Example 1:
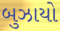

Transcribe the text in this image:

બુઝાયો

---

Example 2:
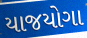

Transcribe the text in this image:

યાજયોગા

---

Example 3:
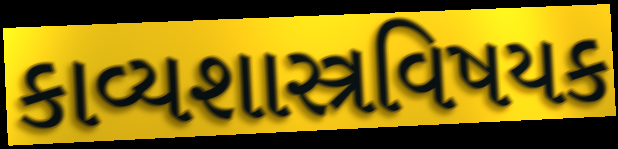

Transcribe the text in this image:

કાવ્યશાસ્ત્રવિષયક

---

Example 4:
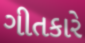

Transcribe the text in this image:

ગીતકારે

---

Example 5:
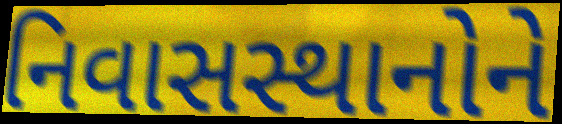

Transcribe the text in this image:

નિવાસસ્થાનોને